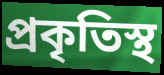
প্রকৃতিস্থ